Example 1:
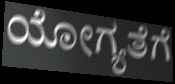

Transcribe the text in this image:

ಯೋಗ್ಯತೆಗೆ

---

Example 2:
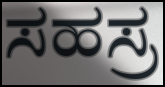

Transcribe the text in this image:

ಸಹಸ್ರ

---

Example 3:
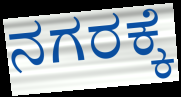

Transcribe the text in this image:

ನಗರಕ್ಕೆ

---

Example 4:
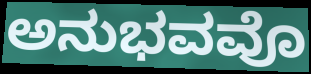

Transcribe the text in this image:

ಅನುಭವವೊ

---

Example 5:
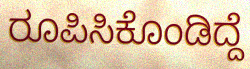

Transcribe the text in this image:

ರೂಪಿಸಿಕೊಂಡಿದ್ದೆ